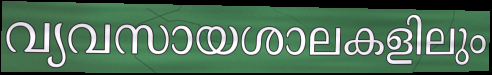
വ്യവസായശാലകളിലും